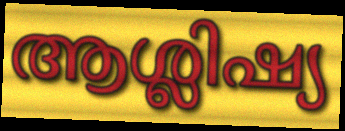
ആശ്ലിഷ്യ